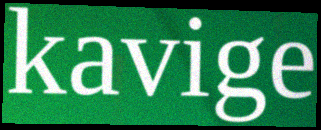
kavige